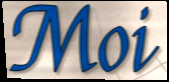
Moi